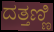
ದತ್ತಣ್ಣಿ